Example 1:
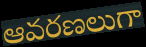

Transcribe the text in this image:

ఆవరణలుగా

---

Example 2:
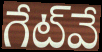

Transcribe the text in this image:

గేట్‌వే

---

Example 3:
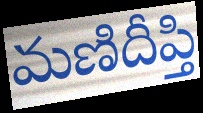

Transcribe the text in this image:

మణిదీప్తి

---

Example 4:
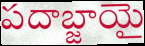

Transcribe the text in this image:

పదాబ్జాయై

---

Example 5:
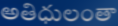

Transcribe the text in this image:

అతిధులంతా